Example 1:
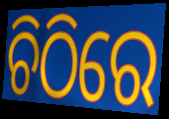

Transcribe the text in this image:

ଚିଠିରେ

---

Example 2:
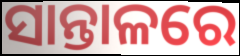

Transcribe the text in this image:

ସାନ୍ତାଳରେ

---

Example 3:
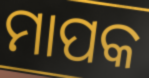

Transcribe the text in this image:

ମାପକ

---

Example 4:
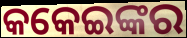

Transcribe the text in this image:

କକେଇଙ୍କର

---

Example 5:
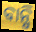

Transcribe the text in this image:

ବାନ୍ଧି